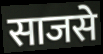
साजसे